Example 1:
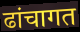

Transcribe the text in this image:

ढांचागत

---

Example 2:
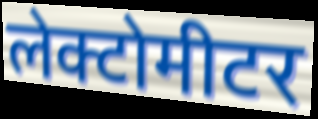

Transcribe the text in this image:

लेक्टोमीटर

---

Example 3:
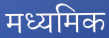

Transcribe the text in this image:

मध्यमिक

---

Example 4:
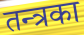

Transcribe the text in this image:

तन्त्रका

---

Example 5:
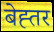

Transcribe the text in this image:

बेह्तर